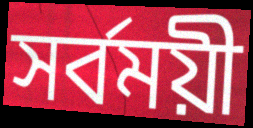
সর্বময়ী